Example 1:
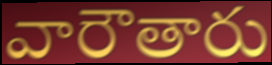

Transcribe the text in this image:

వారౌతారు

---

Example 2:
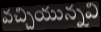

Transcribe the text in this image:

వచ్చియున్నవి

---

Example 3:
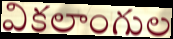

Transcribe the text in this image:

వికలాంగుల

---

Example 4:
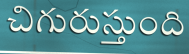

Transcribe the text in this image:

చిగురుస్తుంది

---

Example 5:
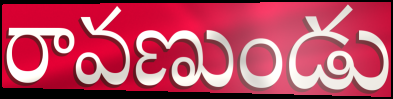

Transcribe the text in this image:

రావణుండు